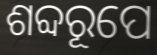
ଶବ୍ଦରୂପେ